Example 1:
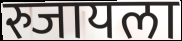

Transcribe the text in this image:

रुजायला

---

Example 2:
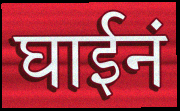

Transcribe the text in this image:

घाईनं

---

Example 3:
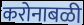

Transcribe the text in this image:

करोनाबळी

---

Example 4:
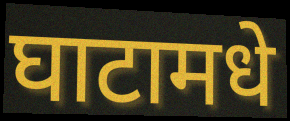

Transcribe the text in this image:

घाटामधे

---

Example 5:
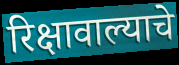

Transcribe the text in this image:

रिक्षावाल्याचे